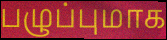
பழுப்புமாக